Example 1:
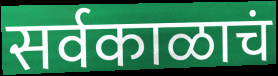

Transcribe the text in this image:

सर्वकाळाचं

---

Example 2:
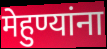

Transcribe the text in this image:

मेहुण्यांना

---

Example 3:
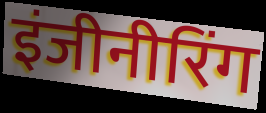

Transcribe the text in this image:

इंजीनीरिंग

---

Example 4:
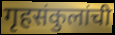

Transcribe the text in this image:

गृहसंकुलांची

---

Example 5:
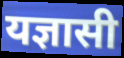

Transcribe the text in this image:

यज्ञासी